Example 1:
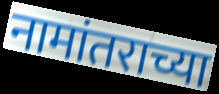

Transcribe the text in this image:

नामांतराच्या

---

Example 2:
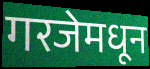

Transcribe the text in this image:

गरजेमधून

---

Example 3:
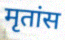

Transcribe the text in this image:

मृतांस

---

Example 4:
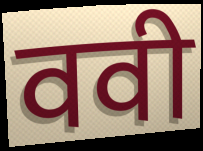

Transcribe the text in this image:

ववी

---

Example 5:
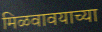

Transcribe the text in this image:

मिळवावयाच्या